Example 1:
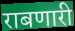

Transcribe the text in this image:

राबणारी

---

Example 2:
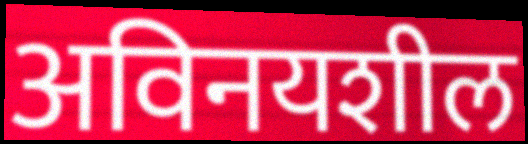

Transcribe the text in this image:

अविनयशील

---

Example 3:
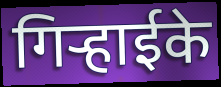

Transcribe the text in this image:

गिर्‍हाईके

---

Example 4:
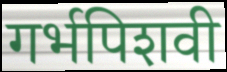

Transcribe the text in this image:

गर्भपिशवी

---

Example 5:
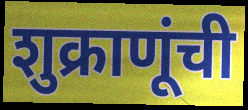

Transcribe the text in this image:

शुक्राणूंची